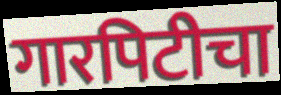
गारपिटीचा